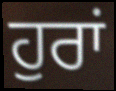
ਹੁਰਾਂ